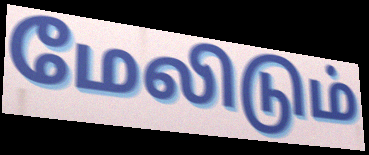
மேலிடும்